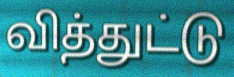
வித்துட்டு